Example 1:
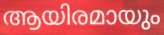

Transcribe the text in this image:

ആയിരമായും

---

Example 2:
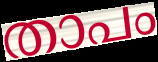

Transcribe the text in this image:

താപം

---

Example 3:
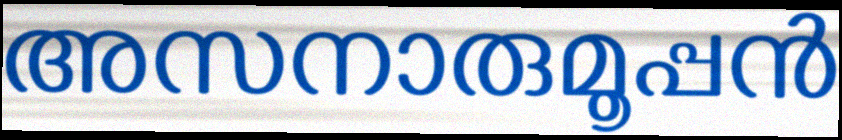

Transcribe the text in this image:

അസനാരുമൂപ്പൻ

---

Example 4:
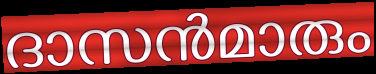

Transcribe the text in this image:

ദാസൻമാരും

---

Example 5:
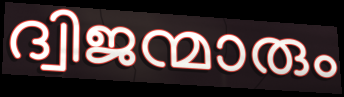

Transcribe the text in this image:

ദ്വിജന്മാരും